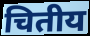
चितीय